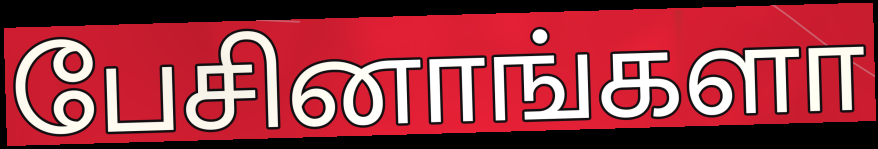
பேசினாங்களா